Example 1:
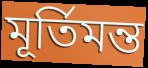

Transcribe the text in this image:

মূর্তিমন্ত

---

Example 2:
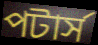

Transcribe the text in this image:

পটার্স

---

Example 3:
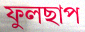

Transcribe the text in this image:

ফুলছাপ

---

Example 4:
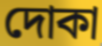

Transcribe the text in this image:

দোকা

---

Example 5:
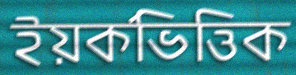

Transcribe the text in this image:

ইয়র্কভিত্তিক